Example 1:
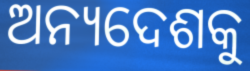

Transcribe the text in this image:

ଅନ୍ୟଦେଶକୁ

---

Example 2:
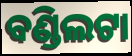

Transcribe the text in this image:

ବଣ୍ଡିଲଟା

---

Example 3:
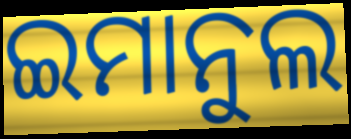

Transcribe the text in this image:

ଇମାନୁଲ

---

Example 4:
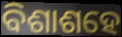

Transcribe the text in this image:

ବିଶାଶହେ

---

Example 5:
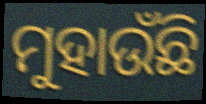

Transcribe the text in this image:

ମୁହାଉଁଛି